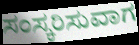
ಸಂಸ್ಕರಿಸುವಾಗ